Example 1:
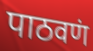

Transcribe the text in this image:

पाठवणं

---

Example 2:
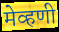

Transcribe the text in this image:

मेव्हणी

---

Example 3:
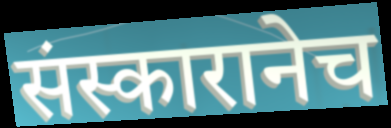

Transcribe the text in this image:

संस्कारानेच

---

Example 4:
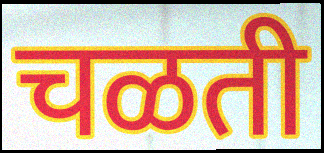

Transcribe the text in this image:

चळती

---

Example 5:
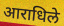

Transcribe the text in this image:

आराधिले